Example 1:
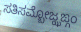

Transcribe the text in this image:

ಸತಿಸಮ್ಬೋಜ್ಝಙ್ಗಂ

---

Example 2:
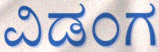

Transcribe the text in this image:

ವಿಡಂಗ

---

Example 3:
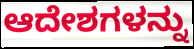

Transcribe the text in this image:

ಆದೇಶಗಳನ್ನು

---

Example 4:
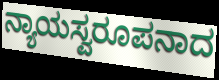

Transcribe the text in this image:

ನ್ಯಾಯಸ್ವರೂಪನಾದ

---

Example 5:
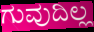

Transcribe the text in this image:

ಗುವುದಿಲ್ಲ